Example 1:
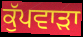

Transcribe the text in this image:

ਕੁੱਪਵਾੜਾ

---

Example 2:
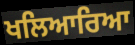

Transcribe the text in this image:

ਖਲਿਆਰਿਆ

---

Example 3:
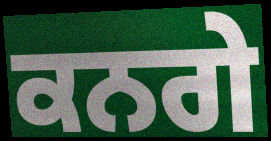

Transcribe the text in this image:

ਕਨਗੇ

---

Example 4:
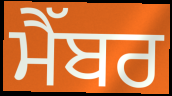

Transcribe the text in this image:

ਮੈੱਬਰ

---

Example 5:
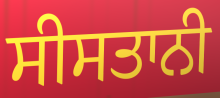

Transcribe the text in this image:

ਸੀਸਤਾਨੀ